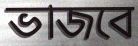
ভাজবে